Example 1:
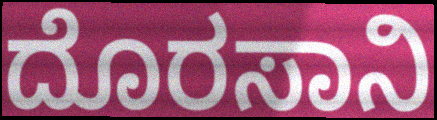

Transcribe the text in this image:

ದೊರಸಾನಿ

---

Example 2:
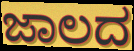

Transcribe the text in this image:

ಜಾಲದ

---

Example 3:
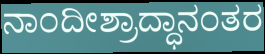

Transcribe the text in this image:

ನಾಂದೀಶ್ರಾದ್ಧಾನಂತರ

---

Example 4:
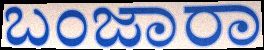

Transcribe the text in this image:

ಬಂಜಾರಾ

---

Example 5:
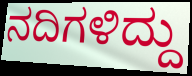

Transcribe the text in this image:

ನದಿಗಳಿದ್ದು